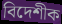
বিদেশীক